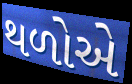
થળોએ